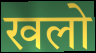
खलो